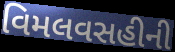
વિમલવસહીની